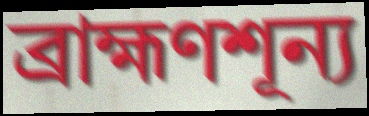
ব্রাহ্মণশূন্য